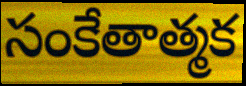
సంకేతాత్మక